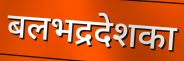
बलभद्रदेशका